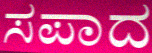
ಸಪಾದ